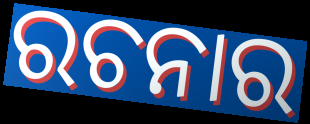
ରଚନାର